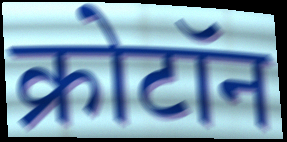
क्रोटॉन